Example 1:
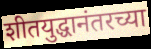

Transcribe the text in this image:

शीतयुद्धानंतरच्या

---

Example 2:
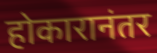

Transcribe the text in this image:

होकारानंतर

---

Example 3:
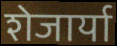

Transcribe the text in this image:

शेजार्या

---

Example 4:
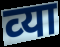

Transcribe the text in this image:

व्‍या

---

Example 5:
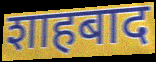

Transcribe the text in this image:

शाहबाद